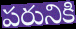
పరునికి